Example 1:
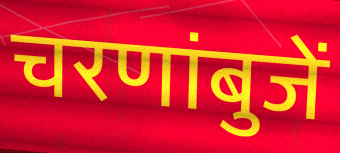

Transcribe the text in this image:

चरणांबुजें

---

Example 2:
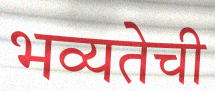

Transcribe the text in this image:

भव्यतेची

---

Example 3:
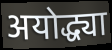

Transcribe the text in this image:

अयोद्ध्या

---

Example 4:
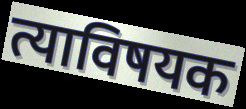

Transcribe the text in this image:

त्याविषयक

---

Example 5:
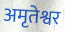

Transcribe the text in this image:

अमृतेश्वर